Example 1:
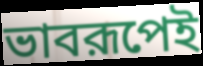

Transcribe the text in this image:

ভাবরূপেই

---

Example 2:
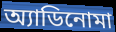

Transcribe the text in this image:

অ্যাডিনোমা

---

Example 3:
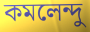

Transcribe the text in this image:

কমলেন্দু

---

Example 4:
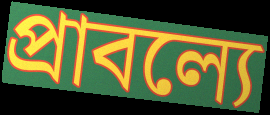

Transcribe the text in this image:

প্রাবল্যে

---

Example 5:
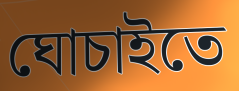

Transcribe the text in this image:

ঘোচাইতে